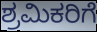
ಶ್ರಮಿಕರಿಗೆ